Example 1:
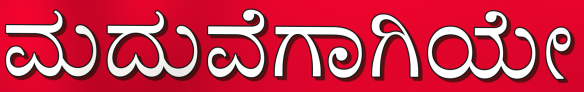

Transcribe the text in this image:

ಮದುವೆಗಾಗಿಯೇ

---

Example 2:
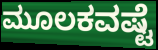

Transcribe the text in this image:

ಮೂಲಕವಷ್ಟೆ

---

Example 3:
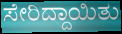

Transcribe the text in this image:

ಸೇರಿದ್ದಾಯಿತು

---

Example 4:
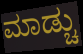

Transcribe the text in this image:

ಮಾಡ್ಚು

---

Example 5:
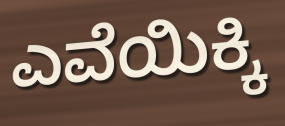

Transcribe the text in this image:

ಎವೆಯಿಕ್ಕಿ